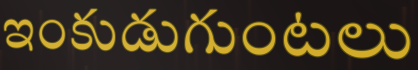
ఇంకుడుగుంటలు